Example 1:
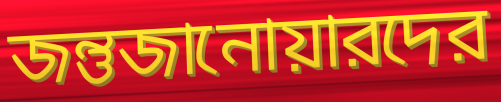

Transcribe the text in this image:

জন্তুজানোয়ারদের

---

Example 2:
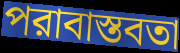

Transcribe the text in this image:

পরাবাস্তবতা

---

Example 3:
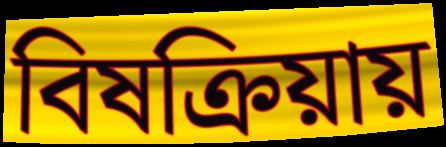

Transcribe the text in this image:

বিষক্রিয়ায়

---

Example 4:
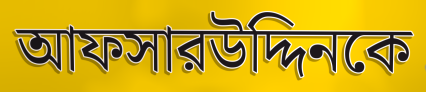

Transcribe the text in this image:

আফসারউদ্দিনকে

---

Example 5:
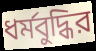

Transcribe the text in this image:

ধর্মবুদ্ধির